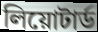
লিয়োটার্ড